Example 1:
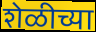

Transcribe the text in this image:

शेळीच्या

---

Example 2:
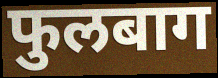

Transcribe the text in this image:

फुलबाग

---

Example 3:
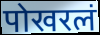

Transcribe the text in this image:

पोखरलं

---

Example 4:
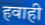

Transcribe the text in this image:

हवाही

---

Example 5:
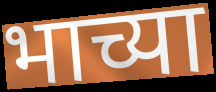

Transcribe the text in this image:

भाच्या